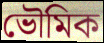
ভৌমিক